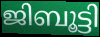
ജിബൂട്ടി